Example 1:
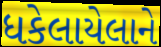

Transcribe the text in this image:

ધકેલાયેલાને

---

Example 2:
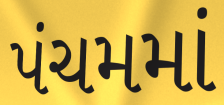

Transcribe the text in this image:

પંચમમાં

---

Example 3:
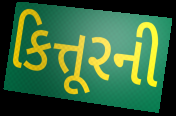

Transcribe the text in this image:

કિત્તૂરની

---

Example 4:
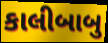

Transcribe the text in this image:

કાલીબાબુ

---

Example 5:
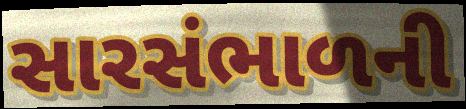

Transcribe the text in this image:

સારસંભાળની